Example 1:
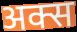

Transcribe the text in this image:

अक्स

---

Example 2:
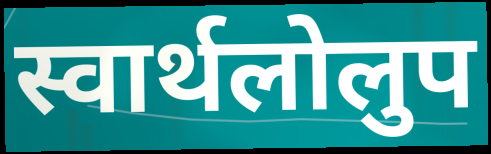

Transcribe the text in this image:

स्वार्थलोलुप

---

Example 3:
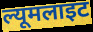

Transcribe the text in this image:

ल्यूमलाइट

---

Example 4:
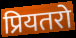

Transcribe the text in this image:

प्रियतरो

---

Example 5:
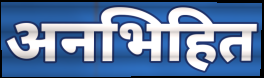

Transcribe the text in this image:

अनभिहित